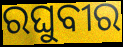
ରଘୁବୀର